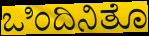
ಒಿಂದಿನಿತೊ